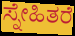
ಸ್ನೇಹಿತರೆ